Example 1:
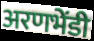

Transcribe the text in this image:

अरणभेंडी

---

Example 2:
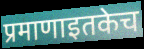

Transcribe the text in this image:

प्रमाणाइतकेच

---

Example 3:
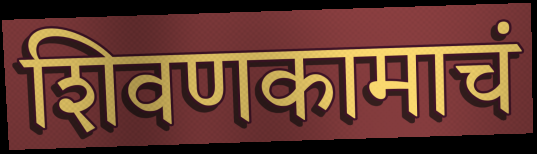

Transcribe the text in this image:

शिवणकामाचं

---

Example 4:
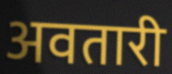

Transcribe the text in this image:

अवतारी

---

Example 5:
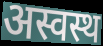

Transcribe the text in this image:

अस्वस्थ